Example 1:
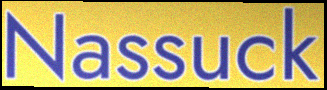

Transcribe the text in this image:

Nassuck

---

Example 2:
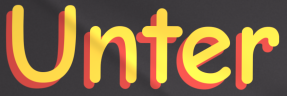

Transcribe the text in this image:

Unter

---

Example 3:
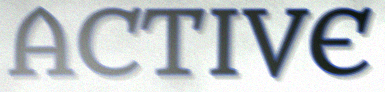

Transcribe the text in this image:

ACTIVE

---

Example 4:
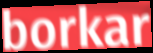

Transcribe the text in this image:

borkar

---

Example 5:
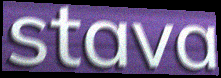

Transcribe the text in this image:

stava